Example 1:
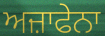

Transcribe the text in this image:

ਅਜ਼ਾਫੇਨਾ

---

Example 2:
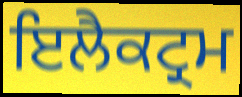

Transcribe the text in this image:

ਇਲੈਕਟ੍ਰਮ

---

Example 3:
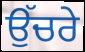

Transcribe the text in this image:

ਉੱਚਰੇ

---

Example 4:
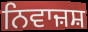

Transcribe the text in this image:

ਨਿਵਾਜ਼ਸ਼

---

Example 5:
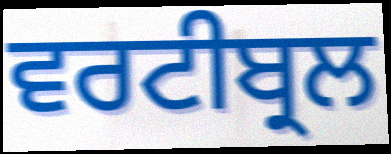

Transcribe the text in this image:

ਵਰਟੀਬ੍ਰਲ